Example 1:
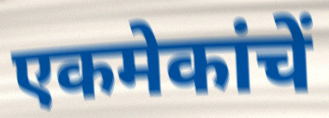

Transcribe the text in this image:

एकमेकांचें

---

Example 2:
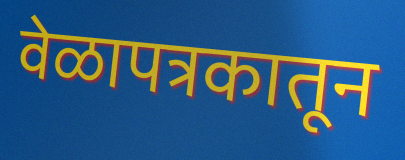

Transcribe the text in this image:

वेळापत्रकातून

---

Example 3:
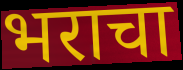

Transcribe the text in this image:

भराचा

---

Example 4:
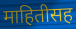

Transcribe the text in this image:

माहितीसह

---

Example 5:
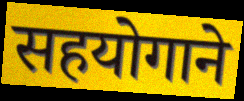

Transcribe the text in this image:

सहयोगाने